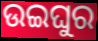
ଉଇଘୁର